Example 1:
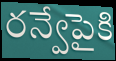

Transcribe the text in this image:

రన్వేపైకి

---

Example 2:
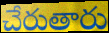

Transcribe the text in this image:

చేరుతారు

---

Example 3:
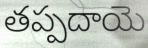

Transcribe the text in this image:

తప్పదాయె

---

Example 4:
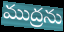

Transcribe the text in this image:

ముద్రను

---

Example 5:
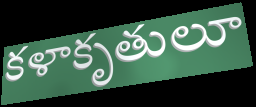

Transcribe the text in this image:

కళాకృతులూ